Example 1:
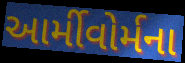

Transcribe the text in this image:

આર્મીવોર્મના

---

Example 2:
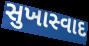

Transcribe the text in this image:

સુખાસ્વાદ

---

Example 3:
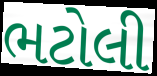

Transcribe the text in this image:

ભટોલી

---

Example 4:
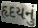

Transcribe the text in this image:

હૃદયનું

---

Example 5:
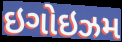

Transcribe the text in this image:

ઇગોઇઝમ